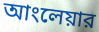
আংলেয়ার